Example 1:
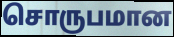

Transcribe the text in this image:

சொருபமான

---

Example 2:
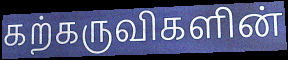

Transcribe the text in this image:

கற்கருவிகளின்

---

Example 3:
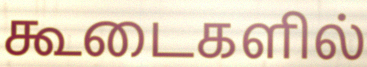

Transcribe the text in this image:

கூடைகளில்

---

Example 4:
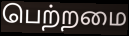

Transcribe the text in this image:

பெற்றமை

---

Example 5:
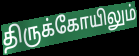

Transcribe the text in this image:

திருக்கோயிலும்